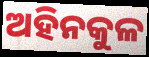
ଅହିନକୁଳ